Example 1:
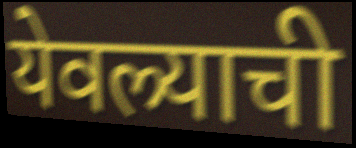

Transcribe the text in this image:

येवल्याची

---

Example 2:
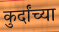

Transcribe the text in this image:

कुर्दांच्या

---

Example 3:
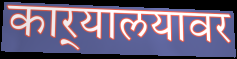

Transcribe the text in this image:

कार्यालयावर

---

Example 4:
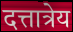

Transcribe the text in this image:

दत्तात्रेय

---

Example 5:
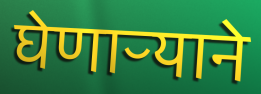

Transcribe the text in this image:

घेणाऱ्याने